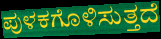
ಪುಳಕಗೊಳಿಸುತ್ತದೆ